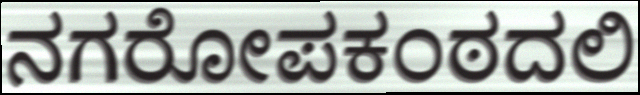
ನಗರೋಪಕಂಠದಲಿ